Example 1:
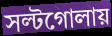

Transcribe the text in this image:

সল্টগোলায়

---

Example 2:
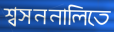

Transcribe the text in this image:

শ্বসননালিতে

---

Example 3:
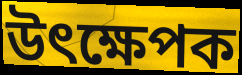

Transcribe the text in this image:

উৎক্ষেপক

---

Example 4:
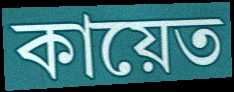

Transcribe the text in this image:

কায়েত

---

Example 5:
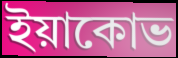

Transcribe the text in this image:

ইয়াকোভ